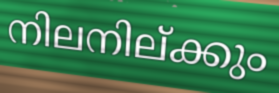
നിലനില്ക്കും